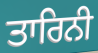
ਤਾਰਿਨੀ